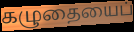
கழுதையைப்